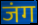
जंग